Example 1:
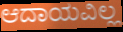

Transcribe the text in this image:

ಆದಾಯವಿಲ್ಲ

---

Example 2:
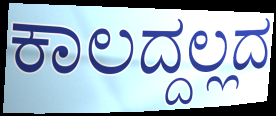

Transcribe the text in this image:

ಕಾಲದ್ದಲ್ಲದ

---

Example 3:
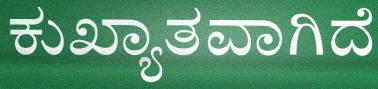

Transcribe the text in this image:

ಕುಖ್ಯಾತವಾಗಿದೆ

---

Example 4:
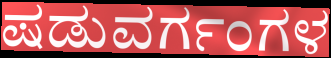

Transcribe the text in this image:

ಷಡುವರ್ಗಂಗಳ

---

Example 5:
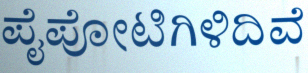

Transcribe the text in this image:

ಪೈಪೋಟಿಗಿಳಿದಿವೆ